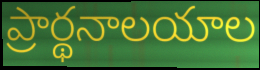
ప్రార్థనాలయాల